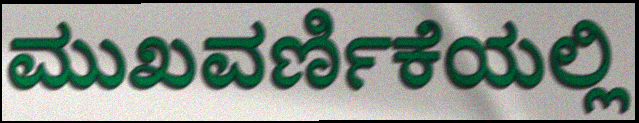
ಮುಖವರ್ಣಿಕೆಯಲ್ಲಿ